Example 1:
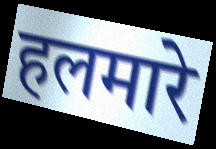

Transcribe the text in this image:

हलमारे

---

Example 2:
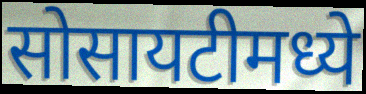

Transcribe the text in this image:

सोसायटीमध्ये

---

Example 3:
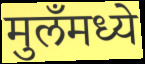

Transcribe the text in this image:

मुलँमध्ये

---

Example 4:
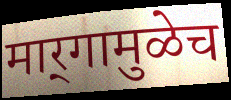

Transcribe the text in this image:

मार्गामुळेच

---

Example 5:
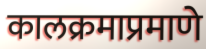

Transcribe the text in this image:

कालक्रमाप्रमाणे